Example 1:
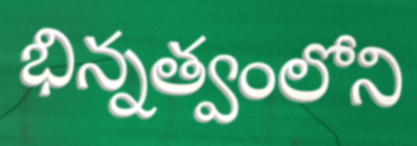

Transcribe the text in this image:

భిన్నత్వంలోని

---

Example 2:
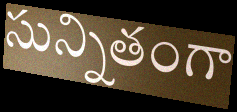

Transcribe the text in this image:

సున్నితంగా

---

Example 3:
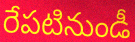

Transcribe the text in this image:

రేపటినుండీ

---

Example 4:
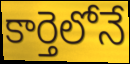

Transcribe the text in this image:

కార్తెలోనే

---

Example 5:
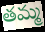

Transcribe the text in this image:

తమ్మ